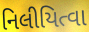
નિલીયિત્વા